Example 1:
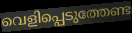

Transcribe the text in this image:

വെളിപ്പെടുത്തേണ്ട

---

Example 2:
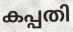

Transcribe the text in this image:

കപ്പതി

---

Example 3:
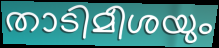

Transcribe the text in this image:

താടിമീശയും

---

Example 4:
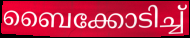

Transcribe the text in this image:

ബൈക്കോടിച്ച്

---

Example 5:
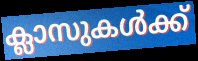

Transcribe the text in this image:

ക്ലാസുകൾക്ക്